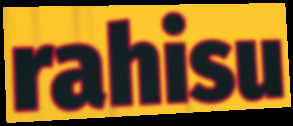
rahisu